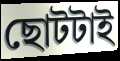
ছোটটাই